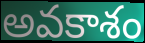
అవకాశం